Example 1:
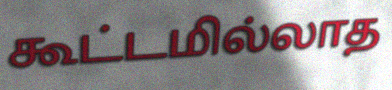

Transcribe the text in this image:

கூட்டமில்லாத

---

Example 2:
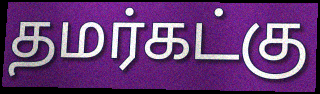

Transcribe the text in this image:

தமர்கட்கு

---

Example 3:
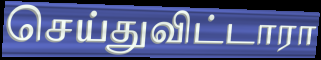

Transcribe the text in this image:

செய்துவிட்டாரா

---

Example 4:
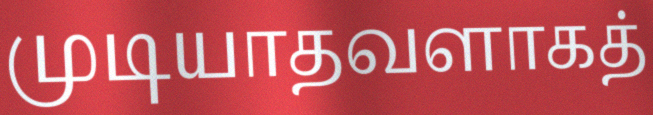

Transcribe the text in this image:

முடியாதவளாகத்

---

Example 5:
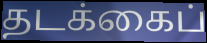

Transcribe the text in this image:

தடக்கைப்